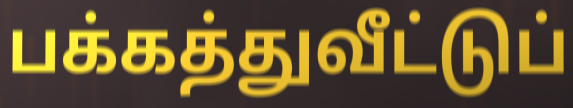
பக்கத்துவீட்டுப்